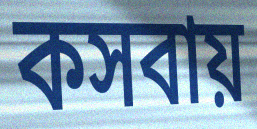
কসবায়